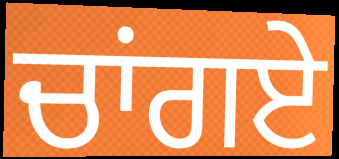
ਚਾਂਗਏ